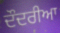
ਦੌਦਰੀਆ